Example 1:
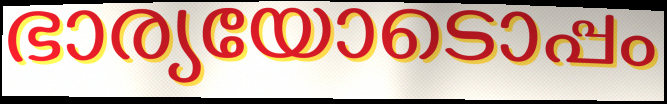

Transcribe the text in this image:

ഭാര്യയോടൊപ്പം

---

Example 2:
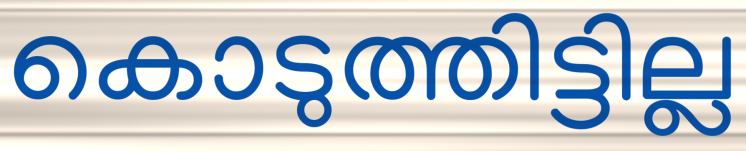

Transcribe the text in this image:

കൊടുത്തിട്ടില്ല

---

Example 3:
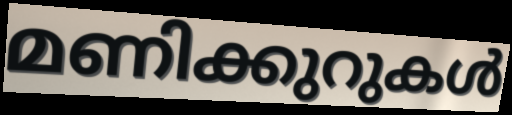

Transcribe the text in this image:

മണിക്കുറുകൾ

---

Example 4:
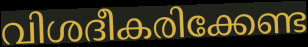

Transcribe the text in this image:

വിശദീകരിക്കേണ്ട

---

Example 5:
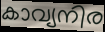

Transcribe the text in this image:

കാവ്യനിര